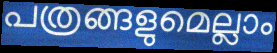
പത്രങ്ങളുമെല്ലാം